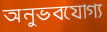
অনুভবযোগ্য